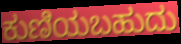
ಕುಣಿಯಬಹುದು